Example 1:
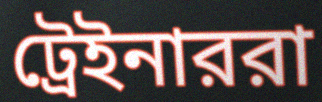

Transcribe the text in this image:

ট্রেইনাররা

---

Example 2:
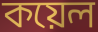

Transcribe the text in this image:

কয়েল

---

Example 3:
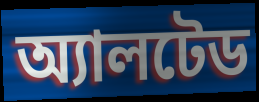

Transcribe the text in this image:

অ্যালটেড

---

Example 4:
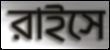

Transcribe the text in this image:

রাইসে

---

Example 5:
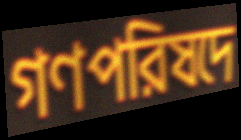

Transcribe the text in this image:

গণপরিষদে